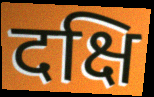
दक्षि